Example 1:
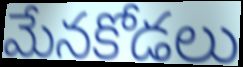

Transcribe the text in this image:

మేనకోడలు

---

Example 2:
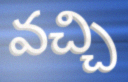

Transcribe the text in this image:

వచ్చి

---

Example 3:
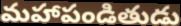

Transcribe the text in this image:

మహాపండితుడు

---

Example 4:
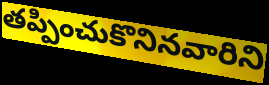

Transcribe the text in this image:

తప్పించుకొనినవారిని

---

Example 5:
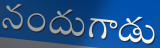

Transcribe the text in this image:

నందుగాడు